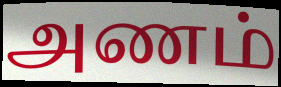
அணம்